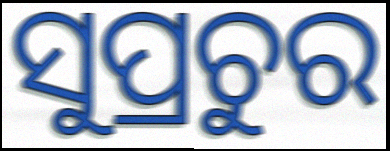
ସୁପ୍ରଚୁର